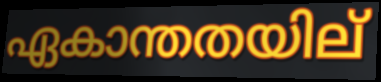
ഏകാന്തതയില്